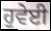
ਹੁਵੇਈ